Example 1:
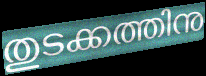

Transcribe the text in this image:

തുടക്കത്തിനു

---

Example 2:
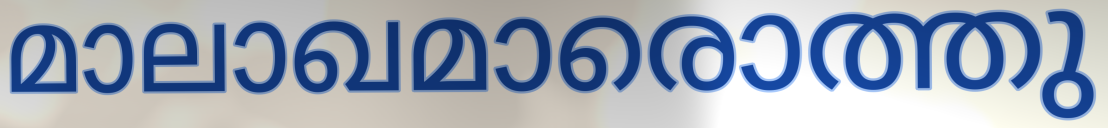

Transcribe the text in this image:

മാലാഖമാരൊത്തു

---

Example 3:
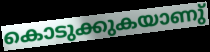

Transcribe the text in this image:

കൊടുക്കുകയാണു്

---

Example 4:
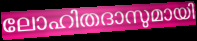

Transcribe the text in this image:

ലോഹിതദാസുമായി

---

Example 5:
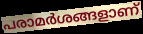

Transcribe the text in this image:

പരാമർശങ്ങളാണ്